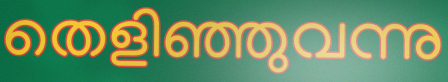
തെളിഞ്ഞുവന്നു